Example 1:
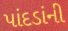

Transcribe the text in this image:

પાંદડાંની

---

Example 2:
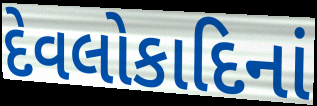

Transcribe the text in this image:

દેવલોકાદિનાં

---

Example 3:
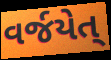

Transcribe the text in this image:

વર્જયેત્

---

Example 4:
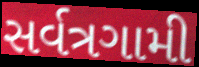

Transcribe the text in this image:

સર્વત્રગામી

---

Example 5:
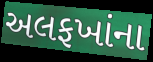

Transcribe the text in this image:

અલફખાંના